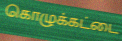
கொழுக்கட்டை